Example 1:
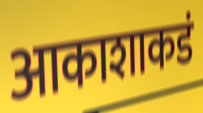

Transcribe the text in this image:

आकाशाकडं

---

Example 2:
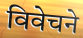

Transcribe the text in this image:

विवेचने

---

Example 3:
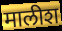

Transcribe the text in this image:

मालीश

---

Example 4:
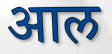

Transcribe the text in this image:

आल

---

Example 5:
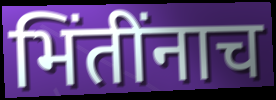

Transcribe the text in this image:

भिंतींनाच